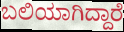
ಬಲಿಯಾಗಿದ್ದಾರೆ